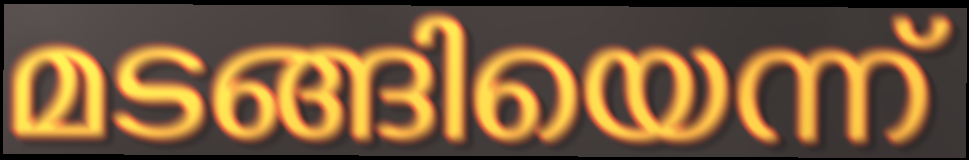
മടങ്ങിയെന്ന്